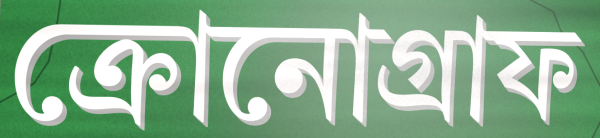
ক্রোনোগ্রাফ